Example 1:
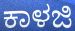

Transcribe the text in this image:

ಕಾಳಜಿ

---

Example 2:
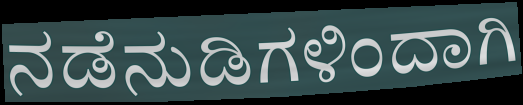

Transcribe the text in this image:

ನಡೆನುಡಿಗಳಿಂದಾಗಿ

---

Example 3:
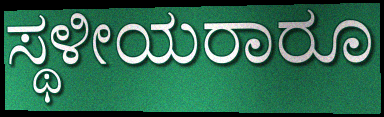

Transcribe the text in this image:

ಸ್ಥಳೀಯರಾರೂ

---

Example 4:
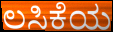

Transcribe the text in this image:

ಲಸಿಕೆಯ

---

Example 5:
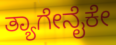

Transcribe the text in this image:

ತ್ಯಾಗೇನೈಕೇ